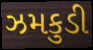
ઝમકુડી